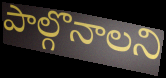
పాల్గొనాలని